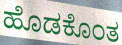
ಹೊಡಕೊಂತ